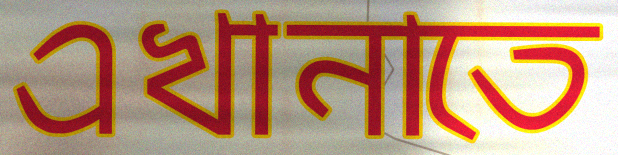
এখানাতে